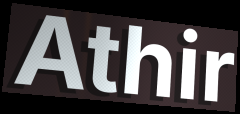
Athir